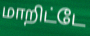
மாறிட்டே